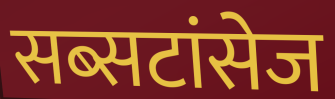
सब्सटांसेज